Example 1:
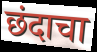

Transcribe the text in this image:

छंदाचा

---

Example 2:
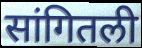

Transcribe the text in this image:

सांगितली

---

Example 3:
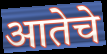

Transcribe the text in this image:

आतेचे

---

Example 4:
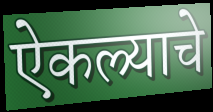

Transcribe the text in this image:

ऐकल्याचे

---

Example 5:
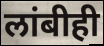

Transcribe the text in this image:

लांबीही